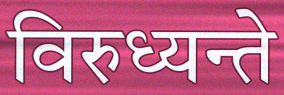
विरुध्यन्ते